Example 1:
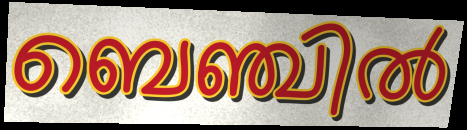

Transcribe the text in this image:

ബെഞ്ചിൽ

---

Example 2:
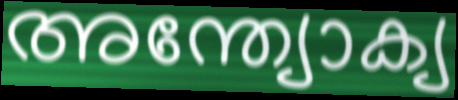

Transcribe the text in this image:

അന്ത്യോക്യ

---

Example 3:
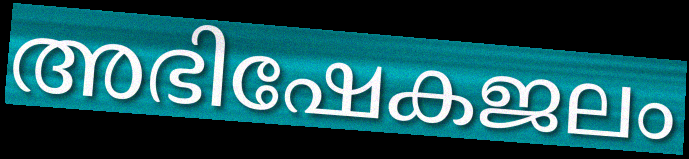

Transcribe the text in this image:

അഭിഷേകജലം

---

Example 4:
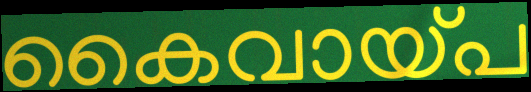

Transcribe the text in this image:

കൈവായ്പ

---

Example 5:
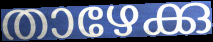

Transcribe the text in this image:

താഴേക്കു